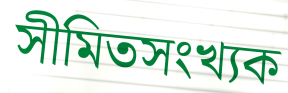
সীমিতসংখ্যক